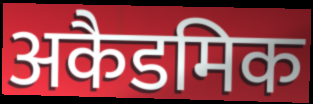
अकैडमिक